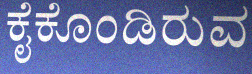
ಕೈಕೊಂಡಿರುವ